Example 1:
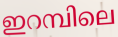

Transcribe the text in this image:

ഇറമ്പിലെ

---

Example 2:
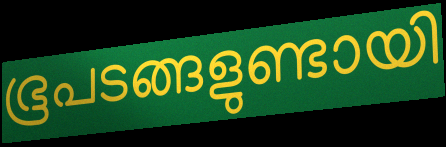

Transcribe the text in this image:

ഭൂപടങ്ങളുണ്ടായി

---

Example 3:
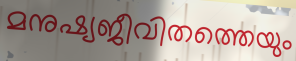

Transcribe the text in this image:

മനുഷ്യജീവിതത്തെയും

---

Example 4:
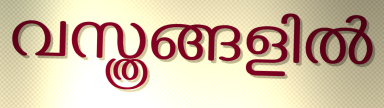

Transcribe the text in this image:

വസ്ത്രങ്ങളിൽ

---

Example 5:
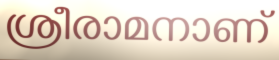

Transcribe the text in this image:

ശ്രീരാമനാണ്